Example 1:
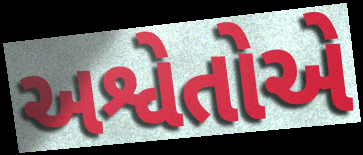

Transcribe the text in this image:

અશ્વેતોએ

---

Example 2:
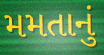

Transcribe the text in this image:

મમતાનું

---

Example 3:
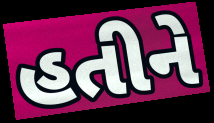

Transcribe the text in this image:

હતીને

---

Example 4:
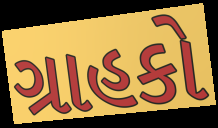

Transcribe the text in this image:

ગ્રાહકો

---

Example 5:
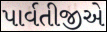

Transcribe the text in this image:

પાર્વતીજીએ